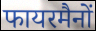
फायरमैनों